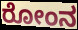
ರೋಂನ